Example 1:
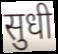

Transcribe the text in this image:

सुधी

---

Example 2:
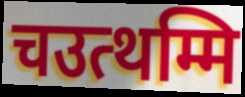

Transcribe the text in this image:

चउत्थम्मि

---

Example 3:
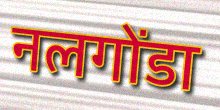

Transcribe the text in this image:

नलगोंडा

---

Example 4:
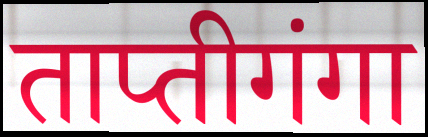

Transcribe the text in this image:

ताप्तीगंगा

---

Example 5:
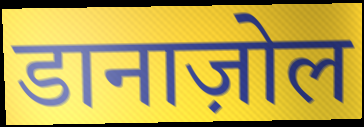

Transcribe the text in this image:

डानाज़ोल